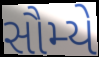
સૌમ્યે